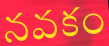
నవకం